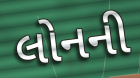
લોનની